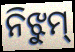
ନିଝୁମ୍